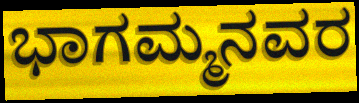
ಭಾಗಮ್ಮನವರ